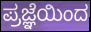
ಪ್ರಜ್ಞೆಯಿಂದ